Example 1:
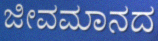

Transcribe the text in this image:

ಜೀವಮಾನದ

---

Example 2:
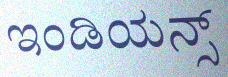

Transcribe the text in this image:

ಇಂಡಿಯನ್ಸ್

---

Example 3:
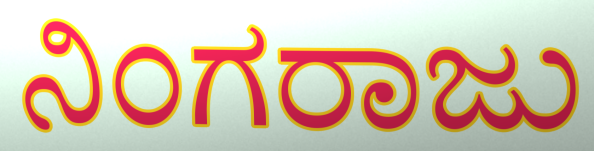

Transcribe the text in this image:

ನಿಂಗರಾಜು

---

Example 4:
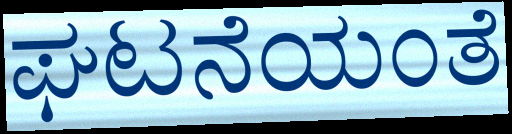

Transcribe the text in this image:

ಘಟನೆಯಂತೆ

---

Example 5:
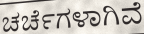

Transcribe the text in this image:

ಚರ್ಚೆಗಳಾಗಿವೆ